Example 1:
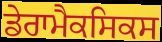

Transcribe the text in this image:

ਡੇਰਾਮੈਕਸਿਕਸ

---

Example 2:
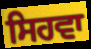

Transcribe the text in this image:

ਸਿਹਵਾ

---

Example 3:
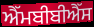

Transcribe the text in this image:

ਐੱਮਬੀਬੀਐੱਸ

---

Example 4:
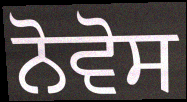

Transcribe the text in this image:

ਨੋਵੋਸ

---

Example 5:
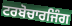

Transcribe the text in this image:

ਟਰਬੋਚਾਰਜਿੰਗ